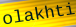
olakhti